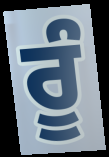
ਰੂੰ